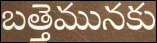
బత్తెమునకు